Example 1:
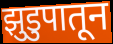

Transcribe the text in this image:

झुडुपातून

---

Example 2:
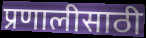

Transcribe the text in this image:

प्रणालीसाठी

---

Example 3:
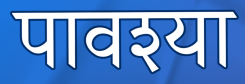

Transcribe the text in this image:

पावश्या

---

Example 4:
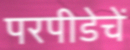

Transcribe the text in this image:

परपीडेचें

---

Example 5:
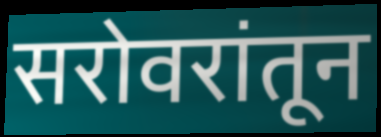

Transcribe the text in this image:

सरोवरांतून